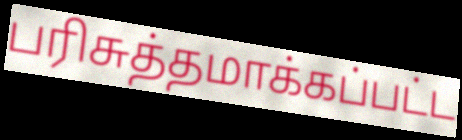
பரிசுத்தமாக்கப்பட்ட